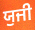
ਯੁਜੀ